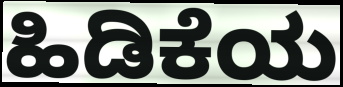
ಹಿಡಿಕೆಯ